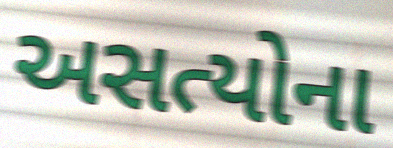
અસત્યોના